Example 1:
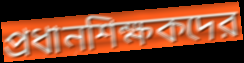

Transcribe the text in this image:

প্রধানশিক্ষকদের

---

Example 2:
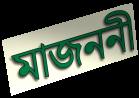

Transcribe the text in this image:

মাজননী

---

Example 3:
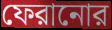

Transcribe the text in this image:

ফেরানোর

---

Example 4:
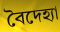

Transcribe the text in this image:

বৈদেহ্যা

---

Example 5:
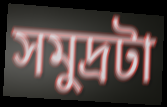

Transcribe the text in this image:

সমুদ্রটা